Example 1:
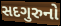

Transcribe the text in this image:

સદગુરુનો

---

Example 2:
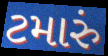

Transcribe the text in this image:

ટમારું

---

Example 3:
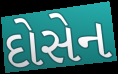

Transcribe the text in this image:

દોસેન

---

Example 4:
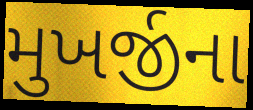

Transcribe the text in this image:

મુખર્જીના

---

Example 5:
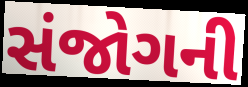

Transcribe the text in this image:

સંજોગની